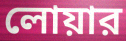
লোয়ার